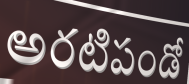
అరటిపండో